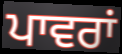
ਪਾਵਰਾਂ